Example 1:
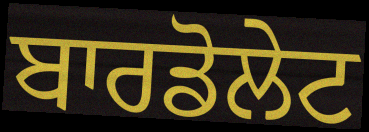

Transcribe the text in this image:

ਬਾਰਡੋਲੇਟ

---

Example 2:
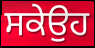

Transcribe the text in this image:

ਸਕੇਉਹ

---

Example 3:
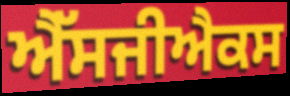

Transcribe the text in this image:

ਐੱਸਜੀਐਕਸ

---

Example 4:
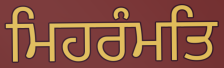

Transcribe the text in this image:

ਮਿਹਰੰਮਤਿ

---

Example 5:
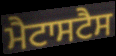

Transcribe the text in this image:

ਮੈਟਾਸਟੈਸ